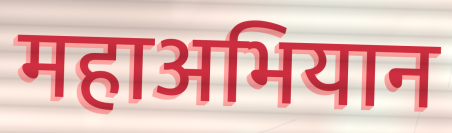
महाअभियान